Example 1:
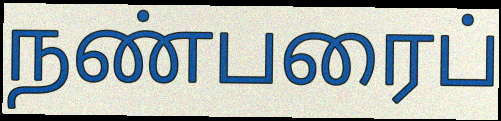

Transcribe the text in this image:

நண்பரைப்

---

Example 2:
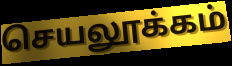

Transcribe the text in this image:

செயலூக்கம்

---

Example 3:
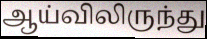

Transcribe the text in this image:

ஆய்விலிருந்து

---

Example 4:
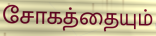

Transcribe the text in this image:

சோகத்தையும்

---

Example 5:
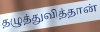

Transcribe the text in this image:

தழுத்துவித்தான்